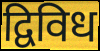
द्विविध